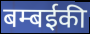
बम्बईकी